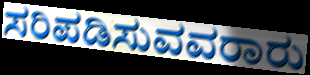
ಸರಿಪಡಿಸುವವರಾರು